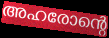
അഹരോന്റെ